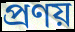
প্রণয়